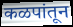
कळपांतून